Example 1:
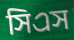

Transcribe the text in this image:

সিএস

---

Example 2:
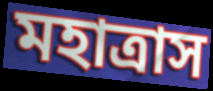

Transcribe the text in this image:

মহাত্রাস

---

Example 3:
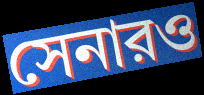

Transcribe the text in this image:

সেনারও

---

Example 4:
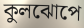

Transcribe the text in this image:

কুলঝোপে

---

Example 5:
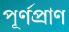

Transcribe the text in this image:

পূর্ণপ্রাণ